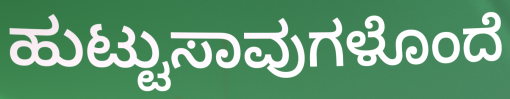
ಹುಟ್ಟುಸಾವುಗಳೊಂದೆ